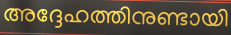
അദ്ദേഹത്തിനുണ്ടായി